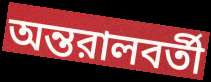
অন্তরালবর্তী